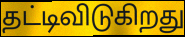
தட்டிவிடுகிறது